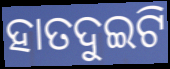
ହାତଦୁଇଟି